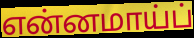
என்னமாய்ப்